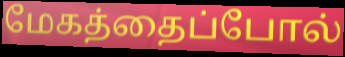
மேகத்தைப்போல்